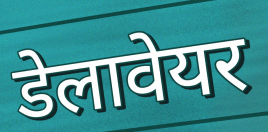
डेलावेयर